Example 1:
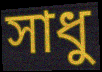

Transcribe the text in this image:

সাধু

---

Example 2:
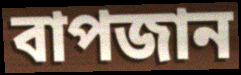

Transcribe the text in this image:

বাপজান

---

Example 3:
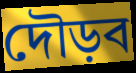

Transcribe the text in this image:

দৌড়ব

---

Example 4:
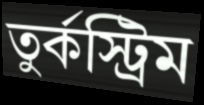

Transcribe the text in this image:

তুর্কস্ট্রিম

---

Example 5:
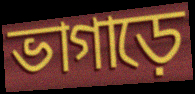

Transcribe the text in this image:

ভাগাড়ে